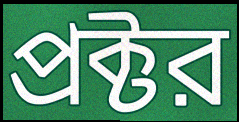
প্রক্টর